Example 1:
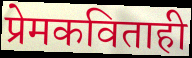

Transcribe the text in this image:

प्रेमकविताही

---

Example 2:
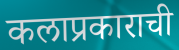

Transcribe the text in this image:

कलाप्रकाराची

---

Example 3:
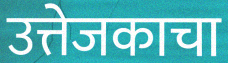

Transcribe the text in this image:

उत्तेजकाचा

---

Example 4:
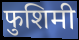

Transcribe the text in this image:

फुशिमी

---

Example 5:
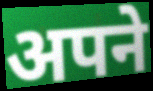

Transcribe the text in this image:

अपने